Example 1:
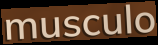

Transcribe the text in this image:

musculo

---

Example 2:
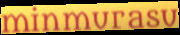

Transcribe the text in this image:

minmurasu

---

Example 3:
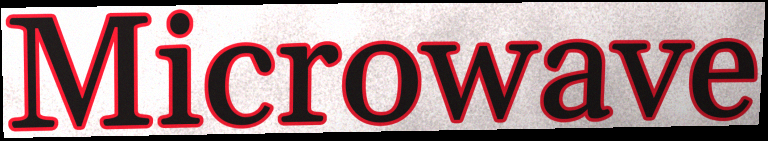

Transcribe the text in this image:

Microwave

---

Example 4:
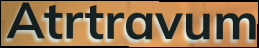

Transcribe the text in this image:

Atrtravum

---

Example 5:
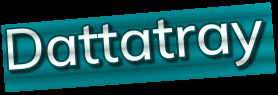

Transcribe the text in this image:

Dattatray